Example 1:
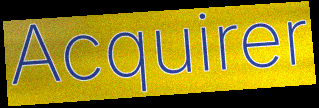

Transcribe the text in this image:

Acquirer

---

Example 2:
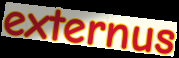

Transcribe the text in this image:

externus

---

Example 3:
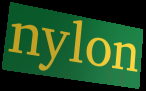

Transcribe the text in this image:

nylon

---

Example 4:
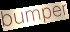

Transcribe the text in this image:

bumper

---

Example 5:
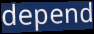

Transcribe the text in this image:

depend